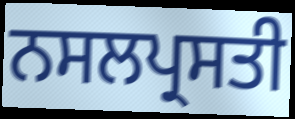
ਨਸਲਪ੍ਰਸਤੀ